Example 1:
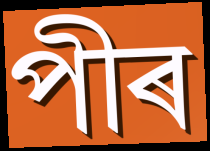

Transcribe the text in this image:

পীৰ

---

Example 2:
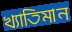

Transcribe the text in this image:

খ্যাতিমান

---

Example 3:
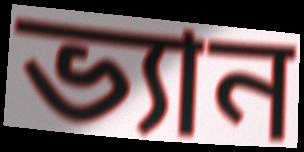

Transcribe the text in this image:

ভ্যান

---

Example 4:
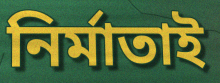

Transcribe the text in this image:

নিৰ্মাতাই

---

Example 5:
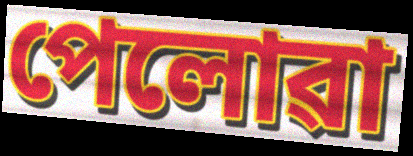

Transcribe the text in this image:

পেলোৱা